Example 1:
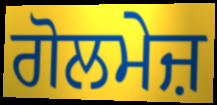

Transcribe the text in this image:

ਗੋਲਮੇਜ਼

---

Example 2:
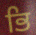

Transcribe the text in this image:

ਭਿ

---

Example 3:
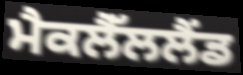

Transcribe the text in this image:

ਮੈਕਲੈੱਲਲੈਂਡ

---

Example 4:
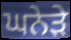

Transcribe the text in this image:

ਘਨੇੜੇ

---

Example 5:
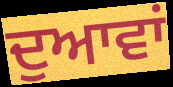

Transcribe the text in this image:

ਦੁਆਵਾਂ